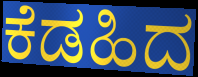
ಕೆಡಹಿದ